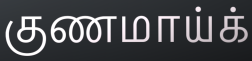
குணமாய்க்